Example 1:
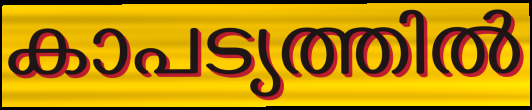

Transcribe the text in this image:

കാപട്യത്തിൽ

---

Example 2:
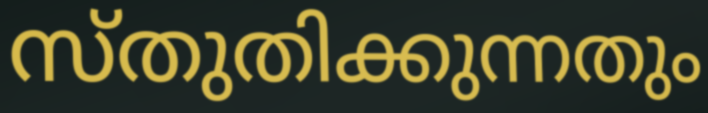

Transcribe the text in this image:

സ്തുതിക്കുന്നതും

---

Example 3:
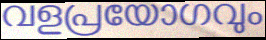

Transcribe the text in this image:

വളപ്രയോഗവും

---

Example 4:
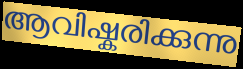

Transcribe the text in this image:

ആവിഷ്കരിക്കുന്നു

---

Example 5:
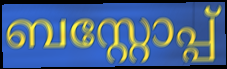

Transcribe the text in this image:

ബസ്റ്റോപ്പ്